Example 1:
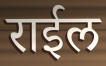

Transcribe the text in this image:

राईल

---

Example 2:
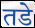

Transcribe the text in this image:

तडे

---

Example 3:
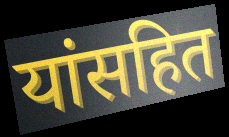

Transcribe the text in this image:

यांसहित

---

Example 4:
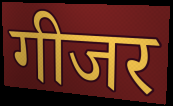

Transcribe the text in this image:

गीजर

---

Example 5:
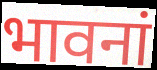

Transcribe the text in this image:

भावनां